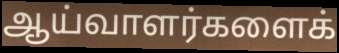
ஆய்வாளர்களைக்